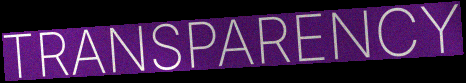
TRANSPARENCY